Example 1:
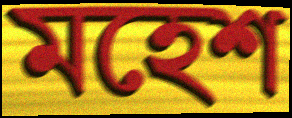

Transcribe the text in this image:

মহেশ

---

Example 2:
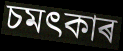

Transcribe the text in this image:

চমৎকাৰ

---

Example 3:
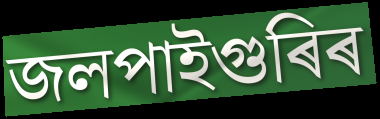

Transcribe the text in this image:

জলপাইগুৰিৰ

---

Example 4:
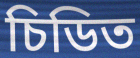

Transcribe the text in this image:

চিডিত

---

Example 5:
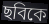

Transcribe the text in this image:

ছবিকে